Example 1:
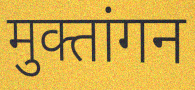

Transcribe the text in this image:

मुक्तांगन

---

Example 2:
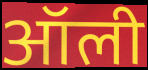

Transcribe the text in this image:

ऑली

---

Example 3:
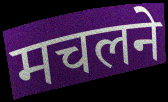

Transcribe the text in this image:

मचलने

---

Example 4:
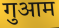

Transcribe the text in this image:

गुआम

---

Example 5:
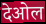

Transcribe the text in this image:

देओल